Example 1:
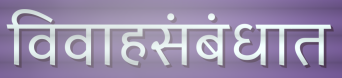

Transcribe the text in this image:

विवाहसंबंधात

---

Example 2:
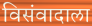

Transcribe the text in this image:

विसंवादाला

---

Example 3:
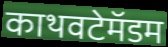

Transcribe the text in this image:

काथवटेमॅडम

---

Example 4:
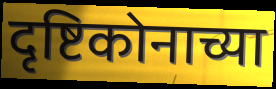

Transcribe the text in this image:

दृष्टिकोनाच्या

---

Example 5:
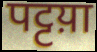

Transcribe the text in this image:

पट्टय़ा